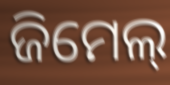
ଜିମେଲ୍